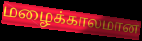
மழைக்காலமான